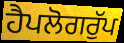
ਹੈਪਲੋਗਰੁੱਪ